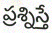
ప్రశ్నిస్తే